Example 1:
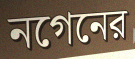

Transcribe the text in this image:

নগেনের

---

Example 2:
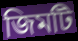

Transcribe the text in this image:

জিমটি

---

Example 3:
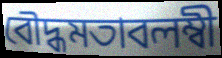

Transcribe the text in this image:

বৌদ্ধমতাবলম্বী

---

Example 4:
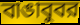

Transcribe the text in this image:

বাঙাবুবর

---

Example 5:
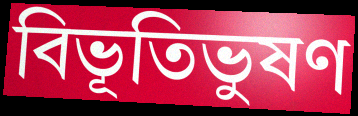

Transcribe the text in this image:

বিভূতিভুষণ